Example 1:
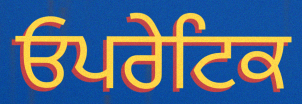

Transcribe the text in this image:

ਓਪਰੇਟਿਕ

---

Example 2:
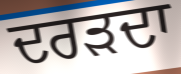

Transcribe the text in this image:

ਦਰੜਦਾ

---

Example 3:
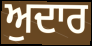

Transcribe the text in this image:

ਅੁਦਾਰ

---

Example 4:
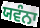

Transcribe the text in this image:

ਯਵੰਨਾ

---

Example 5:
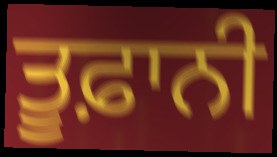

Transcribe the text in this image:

ਤੂਫ਼ਾਨੀ